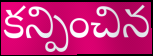
కన్పించిన